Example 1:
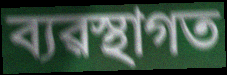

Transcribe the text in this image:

ব্যৱস্থাগত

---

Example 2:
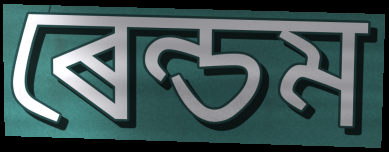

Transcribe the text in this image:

ৰেন্ডম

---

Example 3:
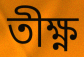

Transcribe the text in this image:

তীক্ষ্ণ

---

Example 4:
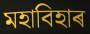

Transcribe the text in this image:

মহাবিহাৰ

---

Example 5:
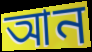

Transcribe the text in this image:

আন